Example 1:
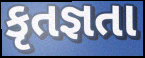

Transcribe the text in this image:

કૃતજ્ઞતા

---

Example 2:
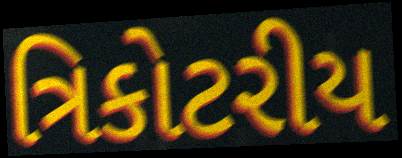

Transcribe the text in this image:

ત્રિકોટરીય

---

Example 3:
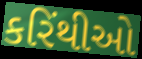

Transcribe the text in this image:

કરિંથીઓ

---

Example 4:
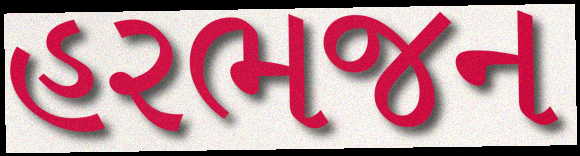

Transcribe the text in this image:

હરભજન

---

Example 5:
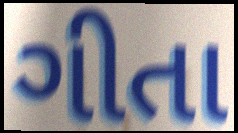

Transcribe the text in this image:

ગીતા